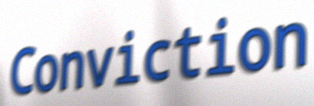
Conviction